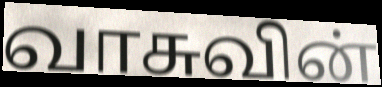
வாசுவின்